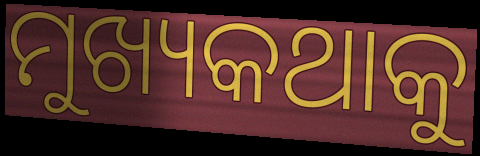
ମୁଖ୍ୟକଥାକୁ